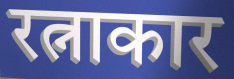
रत्नाकार